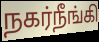
நகர்நீங்கி